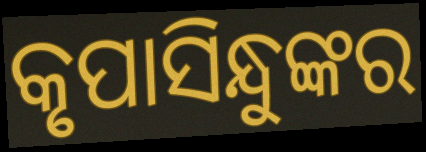
କୃପାସିନ୍ଧୁଙ୍କର